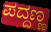
ಪದ್ದಣ್ಣ